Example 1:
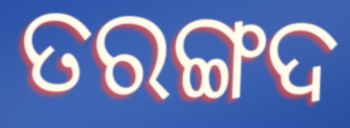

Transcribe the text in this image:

ତରଙ୍ଗଦ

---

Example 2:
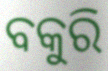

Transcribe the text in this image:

ବକୁରି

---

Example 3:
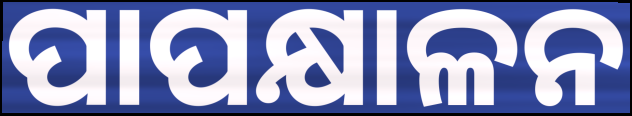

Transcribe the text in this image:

ପାପକ୍ଷାଳନ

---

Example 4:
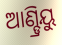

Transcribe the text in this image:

ଆଣ୍ଡ୍ରିୟୁ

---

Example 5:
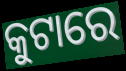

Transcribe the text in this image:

କୁଟାରେ